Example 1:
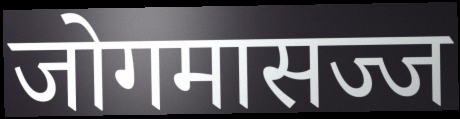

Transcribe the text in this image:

जोगमासज्ज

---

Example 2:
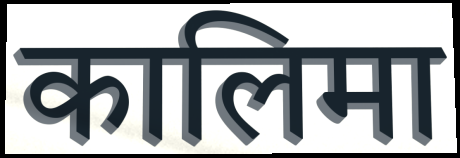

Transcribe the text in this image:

कालिमा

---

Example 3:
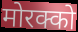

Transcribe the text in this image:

मोरक्को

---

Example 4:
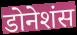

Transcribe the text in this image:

डोनेशंस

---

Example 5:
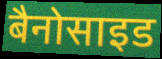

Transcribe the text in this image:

बैनोसाइड